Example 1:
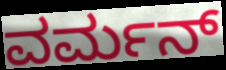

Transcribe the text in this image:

ವರ್ಮನ್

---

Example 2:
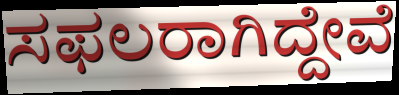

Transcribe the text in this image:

ಸಫಲರಾಗಿದ್ದೇವೆ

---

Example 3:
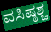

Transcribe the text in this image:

ವಸಿಷ್ಠಶ್ಚ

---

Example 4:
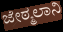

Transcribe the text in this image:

ಜೇಠ್ಮಲಾನಿ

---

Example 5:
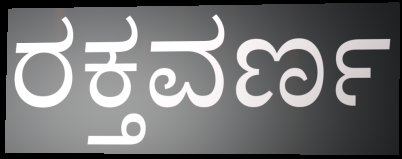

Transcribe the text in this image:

ರಕ್ತವರ್ಣ